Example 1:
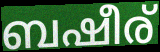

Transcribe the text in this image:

ബഷീര്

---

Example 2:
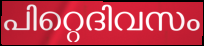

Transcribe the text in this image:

പിറ്റെദിവസം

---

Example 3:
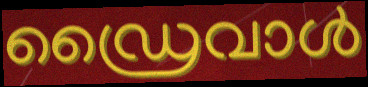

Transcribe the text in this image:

ഡ്രൈവാൾ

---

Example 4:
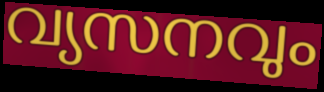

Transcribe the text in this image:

വ്യസനവും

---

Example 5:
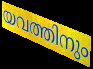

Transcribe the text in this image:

യവത്തിനും